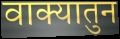
वाक्यातुन